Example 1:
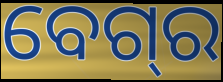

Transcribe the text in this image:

ବେଗ୍‌ର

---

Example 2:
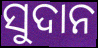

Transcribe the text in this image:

ସୁଦାନ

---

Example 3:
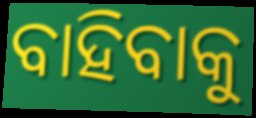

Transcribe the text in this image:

ବାହିବାକୁ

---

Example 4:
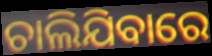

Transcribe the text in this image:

ଚାଲିଯିବାରେ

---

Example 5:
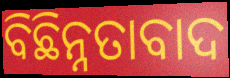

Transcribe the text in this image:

ବିଛିନ୍ନତାବାଦ